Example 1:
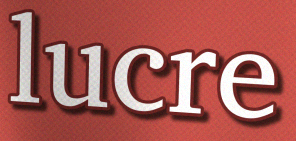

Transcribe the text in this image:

lucre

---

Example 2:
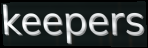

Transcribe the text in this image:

keepers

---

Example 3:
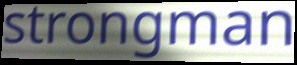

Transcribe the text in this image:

strongman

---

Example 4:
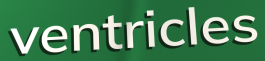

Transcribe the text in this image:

ventricles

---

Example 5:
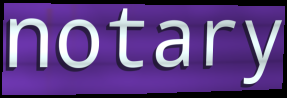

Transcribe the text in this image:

notary